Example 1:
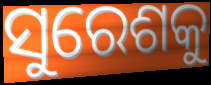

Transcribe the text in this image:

ସୁରେଶକୁ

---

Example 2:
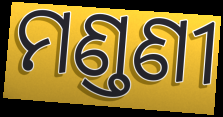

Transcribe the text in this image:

ମଣ୍ଡଣୀ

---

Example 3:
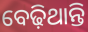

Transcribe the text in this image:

ବେଢ଼ିଥାନ୍ତି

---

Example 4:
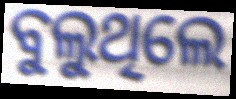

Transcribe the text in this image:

ବୁଲୁଥିଲେ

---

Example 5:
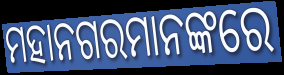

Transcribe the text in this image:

ମହାନଗରମାନଙ୍କରେ